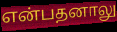
என்பதனாலு